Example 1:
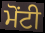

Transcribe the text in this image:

ਮੋਂਟੀ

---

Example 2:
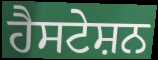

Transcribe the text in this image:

ਹੈਸਟੇਸ਼ਨ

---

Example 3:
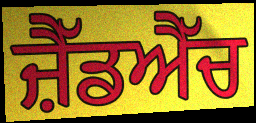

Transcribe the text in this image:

ਜ਼ੈੱਡਐੱਚ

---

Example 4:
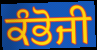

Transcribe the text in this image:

ਕੰਭੋਜੀ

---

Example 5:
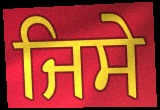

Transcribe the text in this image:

ਜਿਸੇ